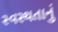
સ્વસ્થતાનું